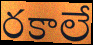
రకాలే